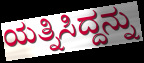
ಯತ್ನಿಸಿದ್ದನ್ನು